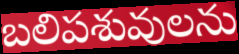
బలిపశువులను